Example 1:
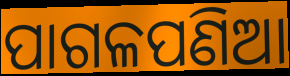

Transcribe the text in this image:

ପାଗଳପଣିଆ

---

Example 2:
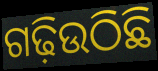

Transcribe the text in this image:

ଗଢ଼ିଉଠିଛି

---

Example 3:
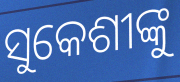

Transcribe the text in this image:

ସୁକେଶୀଙ୍କୁ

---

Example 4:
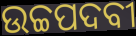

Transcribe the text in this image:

ଉଚ୍ଚପଦବୀ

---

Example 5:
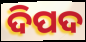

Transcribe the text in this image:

ଦିପଦ